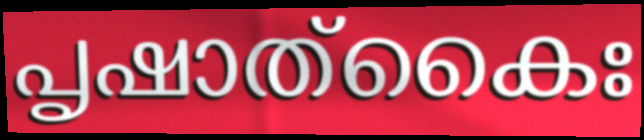
പൃഷാത്കൈഃ